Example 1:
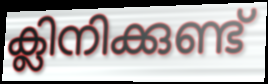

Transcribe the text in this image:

ക്ലിനിക്കുണ്ട്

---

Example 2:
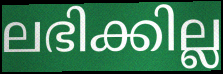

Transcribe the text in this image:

ലഭിക്കില്ല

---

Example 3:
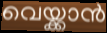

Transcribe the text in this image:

വെയ്ക്കാൻ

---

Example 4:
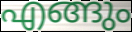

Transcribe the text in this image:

എങ്ങും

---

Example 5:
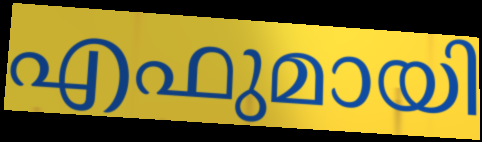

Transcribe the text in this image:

എഫുമായി